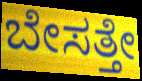
ಬೇಸತ್ತೇ